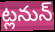
ట్లనున్